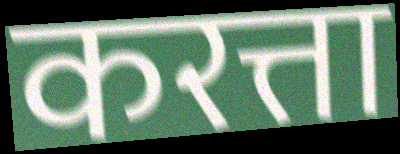
करत्ता